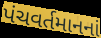
પંચવર્તમાનનાં